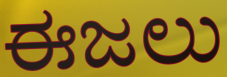
ಈಜಲು